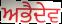
ਅਭੈਦੇਵ